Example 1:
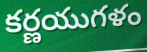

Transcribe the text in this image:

కర్ణయుగళం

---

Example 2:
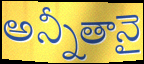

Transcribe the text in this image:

అన్నీతానై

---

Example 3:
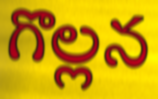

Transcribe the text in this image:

గొల్లన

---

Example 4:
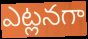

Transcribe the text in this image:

ఎట్లనగా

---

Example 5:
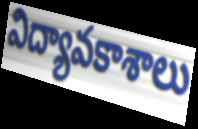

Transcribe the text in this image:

విద్యావకాశాలు